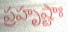
ప్రహృష్టాః